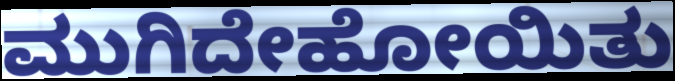
ಮುಗಿದೇಹೋಯಿತು